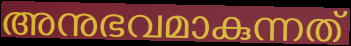
അനുഭവമാകുന്നത്